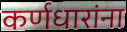
कर्णधारांना